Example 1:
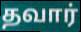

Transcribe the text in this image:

தவார்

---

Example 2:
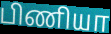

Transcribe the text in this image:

பிணியா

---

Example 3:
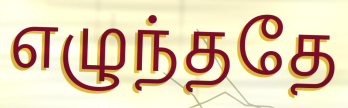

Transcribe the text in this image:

எழுந்ததே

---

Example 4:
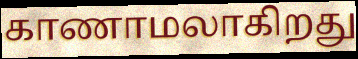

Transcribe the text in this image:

காணாமலாகிறது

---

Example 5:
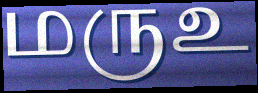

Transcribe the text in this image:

மருஉ